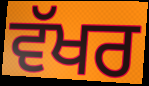
ਵੱਖਰ